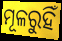
ମୂଳରୁହିଁ